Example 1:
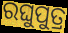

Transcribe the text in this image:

ରଘୁପୁତ୍ର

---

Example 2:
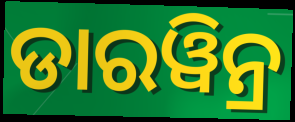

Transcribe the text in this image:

ଡାରୱିନ୍ର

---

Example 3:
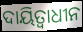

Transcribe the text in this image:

ଦାୟିତ୍ୱାଧୀନ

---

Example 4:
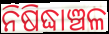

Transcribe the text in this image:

ନିଷିଦ୍ଧାଞ୍ଚଳ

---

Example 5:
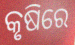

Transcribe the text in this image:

କୃଷିରେ